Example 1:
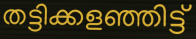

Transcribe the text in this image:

തട്ടിക്കളഞ്ഞിട്ട്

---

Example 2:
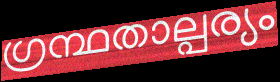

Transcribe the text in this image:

ഗ്രന്ഥതാല്പര്യം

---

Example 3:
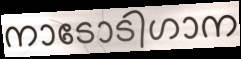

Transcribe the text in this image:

നാടോടിഗാന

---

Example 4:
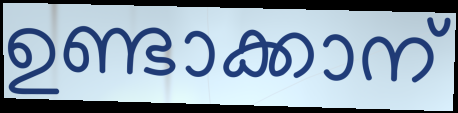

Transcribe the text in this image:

ഉണ്ടാക്കാന്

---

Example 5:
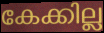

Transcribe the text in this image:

കേക്കില്ല